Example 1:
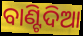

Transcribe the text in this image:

ବାଣ୍ଟିଦିଆ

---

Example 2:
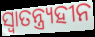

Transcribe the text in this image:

ସ୍ଵାତନ୍ତ୍ର୍ୟହୀନ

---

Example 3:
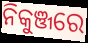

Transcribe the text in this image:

ନିକୁଞ୍ଜରେ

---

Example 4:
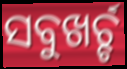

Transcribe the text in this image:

ସବୁଖର୍ଚ୍ଚ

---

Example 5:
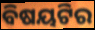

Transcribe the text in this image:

ବିଷୟଟିର